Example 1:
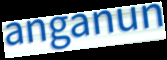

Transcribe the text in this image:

anganun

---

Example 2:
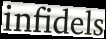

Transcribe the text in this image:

infidels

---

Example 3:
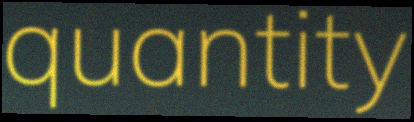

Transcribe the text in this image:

quantity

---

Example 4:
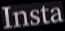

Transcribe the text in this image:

Insta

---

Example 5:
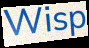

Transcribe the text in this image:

Wisp